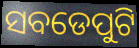
ସବଡେପୁଟି